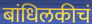
बांधिलकीचं